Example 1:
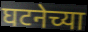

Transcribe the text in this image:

घटनेच्या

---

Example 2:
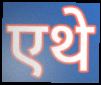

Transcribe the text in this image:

एथे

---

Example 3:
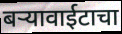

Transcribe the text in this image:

बऱ्यावाईटाचा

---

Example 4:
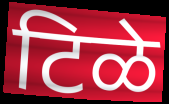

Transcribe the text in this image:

टिळे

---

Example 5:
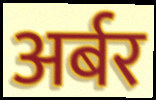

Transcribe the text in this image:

अर्बर